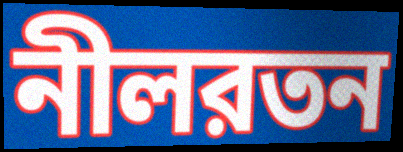
নীলরতন